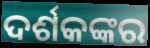
ଦର୍ଶକଙ୍କର